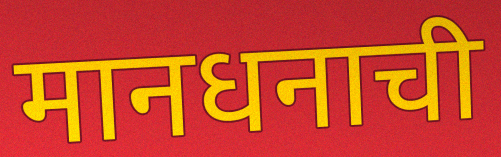
मानधनाची